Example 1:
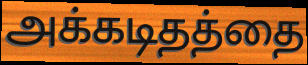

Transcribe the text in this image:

அக்கடிதத்தை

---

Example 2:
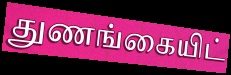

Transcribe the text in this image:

துணங்கையிட்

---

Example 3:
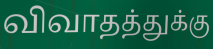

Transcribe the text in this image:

விவாதத்துக்கு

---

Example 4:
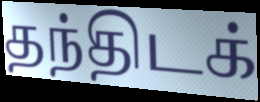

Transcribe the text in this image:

தந்திடக்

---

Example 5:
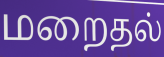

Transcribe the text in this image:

மறைதல்